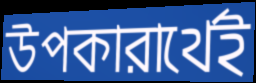
উপকারার্থেই